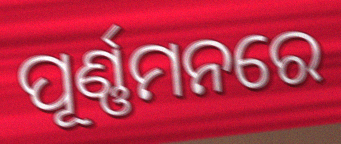
ପୂର୍ଣ୍ଣମନରେ